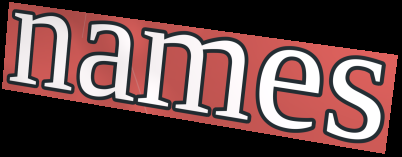
names